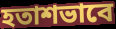
হতাশভাবে